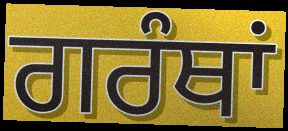
ਗਰੰਥਾਂ